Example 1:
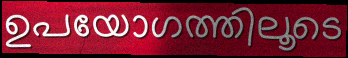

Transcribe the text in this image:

ഉപയോഗത്തിലൂടെ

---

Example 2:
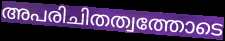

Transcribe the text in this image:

അപരിചിതത്വത്തോടെ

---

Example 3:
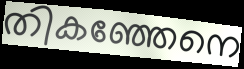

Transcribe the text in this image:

തികഞ്ഞേനെ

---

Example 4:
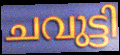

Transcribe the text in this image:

ചവുട്ടി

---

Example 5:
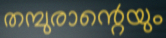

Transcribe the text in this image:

തമ്പുരാന്റെയും